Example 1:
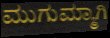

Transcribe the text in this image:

ಮುಗುಮ್ಮಾಗಿ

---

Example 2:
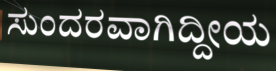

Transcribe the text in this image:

ಸುಂದರವಾಗಿದ್ದೀಯ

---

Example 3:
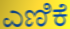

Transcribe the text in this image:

ಎಣಿಕೆ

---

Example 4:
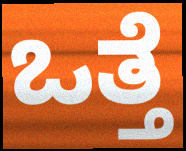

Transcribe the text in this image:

ಒತ್ತೆ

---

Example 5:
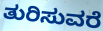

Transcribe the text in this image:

ತುರಿಸುವರೆ